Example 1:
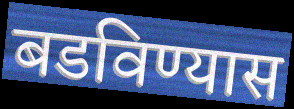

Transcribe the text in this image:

बडविण्यास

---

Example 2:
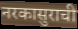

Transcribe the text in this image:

नरकासुराची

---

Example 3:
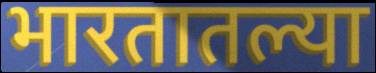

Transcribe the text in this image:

भारतातल्या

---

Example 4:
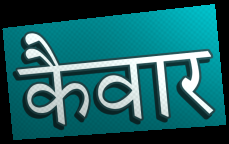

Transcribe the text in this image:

कैवार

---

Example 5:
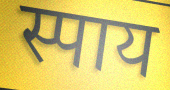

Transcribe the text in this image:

स्पाय